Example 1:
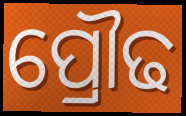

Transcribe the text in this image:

ପ୍ରୌଢ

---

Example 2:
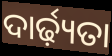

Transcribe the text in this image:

ଦାର୍ଢ଼୍ୟତା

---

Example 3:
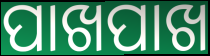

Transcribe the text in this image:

ପାଖପାଖ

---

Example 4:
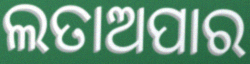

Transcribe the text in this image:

ଲତାଅପାର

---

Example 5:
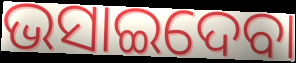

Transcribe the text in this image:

ଭସାଇଦେବା